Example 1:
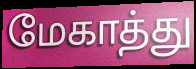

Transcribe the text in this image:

மேகாத்து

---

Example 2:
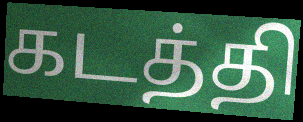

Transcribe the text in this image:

கடத்தி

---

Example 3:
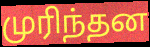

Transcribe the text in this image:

முரிந்தன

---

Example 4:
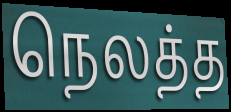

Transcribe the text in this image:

நெலத்த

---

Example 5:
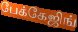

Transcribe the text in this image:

பேக்கேஜிங்